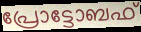
പ്രോട്ടോബഫ്